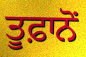
ਤੂਫ਼ਾਨੋਂ